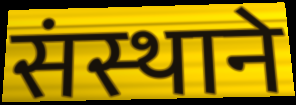
संस्थाने